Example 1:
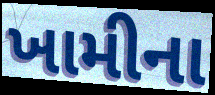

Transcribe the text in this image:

ખામીના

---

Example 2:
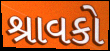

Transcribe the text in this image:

શ્રાવકો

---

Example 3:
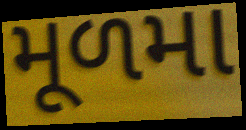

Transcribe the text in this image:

મૂળમા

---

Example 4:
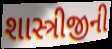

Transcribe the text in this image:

શાસ્ત્રીજીની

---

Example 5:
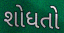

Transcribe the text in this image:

શોધતો